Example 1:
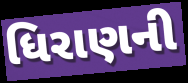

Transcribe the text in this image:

ધિરાણની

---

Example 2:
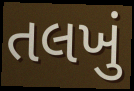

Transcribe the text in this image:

તલખું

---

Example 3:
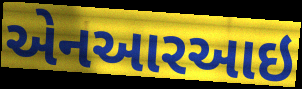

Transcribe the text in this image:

એનઆરઆઇ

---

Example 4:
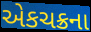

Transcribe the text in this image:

એકચક્રના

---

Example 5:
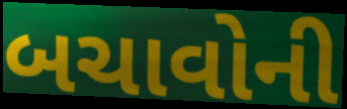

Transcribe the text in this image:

બચાવોની